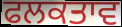
ਫਲਕਤਾਵ